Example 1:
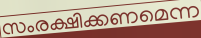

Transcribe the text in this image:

സംരക്ഷിക്കണമെന്ന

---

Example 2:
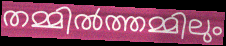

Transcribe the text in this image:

തമ്മിൽത്തമ്മിലും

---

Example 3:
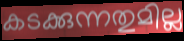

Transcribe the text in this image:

കടക്കുന്നതുമില്ല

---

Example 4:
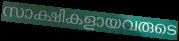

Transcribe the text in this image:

സാക്ഷികളായവരുടെ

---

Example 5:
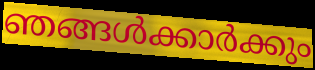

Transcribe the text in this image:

ഞങ്ങൾക്കാർക്കും